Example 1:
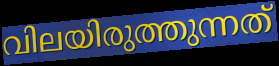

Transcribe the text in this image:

വിലയിരുത്തുന്നത്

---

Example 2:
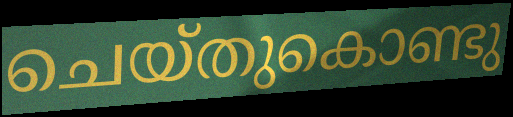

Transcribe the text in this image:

ചെയ്തുകൊണ്ടു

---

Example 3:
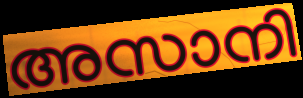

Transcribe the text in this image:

അസാനി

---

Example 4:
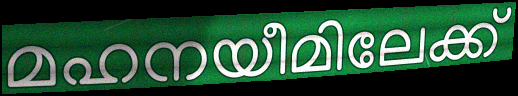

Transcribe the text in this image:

മഹനയീമിലേക്ക്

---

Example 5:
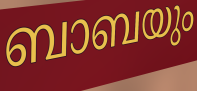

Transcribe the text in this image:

ബാബയും